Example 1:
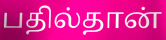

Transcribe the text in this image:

பதில்தான்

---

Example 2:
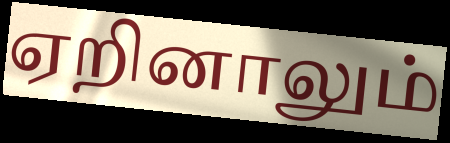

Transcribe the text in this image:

ஏறினாலும்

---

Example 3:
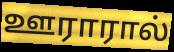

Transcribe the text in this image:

ஊராரால்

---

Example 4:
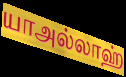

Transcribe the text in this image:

யாஅல்லாஹ்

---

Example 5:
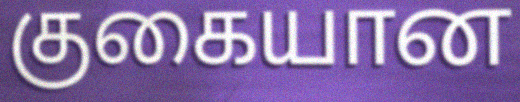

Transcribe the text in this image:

குகையான